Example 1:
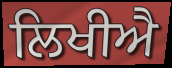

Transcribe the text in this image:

ਲਿਖੀਐ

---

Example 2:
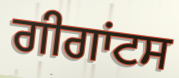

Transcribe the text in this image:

ਗੀਗਾਂਟਸ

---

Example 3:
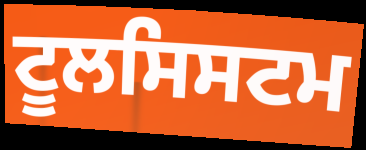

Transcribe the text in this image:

ਟੂਲਸਿਸਟਮ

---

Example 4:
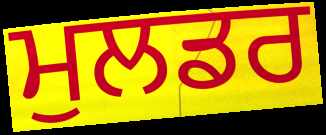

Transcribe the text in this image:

ਮੁਲਡਰ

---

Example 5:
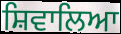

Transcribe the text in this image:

ਸ਼ਿਵਾਲਿਆ